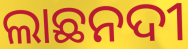
ଲାଛନଦୀ